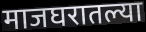
माजघरातल्या